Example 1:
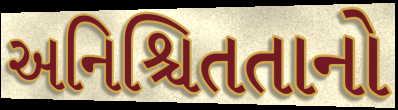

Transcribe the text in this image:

અનિશ્ચિતતાનો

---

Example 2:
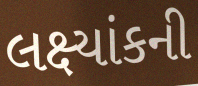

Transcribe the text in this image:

લક્ષ્યાંકની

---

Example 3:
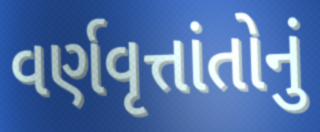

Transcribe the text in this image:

વર્ણવૃત્તાંતોનું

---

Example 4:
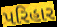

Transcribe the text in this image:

પરિહાર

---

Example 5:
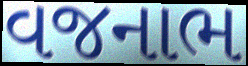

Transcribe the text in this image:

વજનાભ